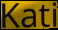
Kati